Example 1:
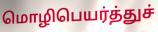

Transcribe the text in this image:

மொழிபெயர்த்துச்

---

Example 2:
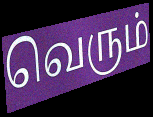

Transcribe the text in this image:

வெரும்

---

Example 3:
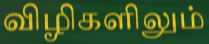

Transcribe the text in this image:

விழிகளிலும்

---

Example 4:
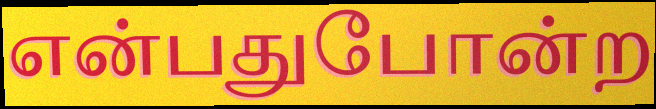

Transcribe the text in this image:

என்பதுபோன்ற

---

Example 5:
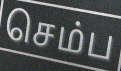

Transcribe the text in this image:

செம்ப